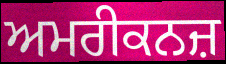
ਅਮਰੀਕਨਜ਼